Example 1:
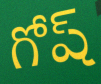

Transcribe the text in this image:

గోష్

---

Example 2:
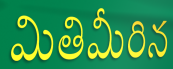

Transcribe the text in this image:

మితిమీరిన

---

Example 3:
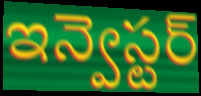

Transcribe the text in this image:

ఇన్వెస్టర్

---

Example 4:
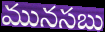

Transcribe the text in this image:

మునసబు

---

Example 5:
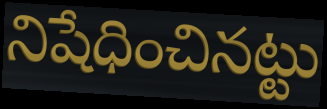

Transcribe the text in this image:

నిషేధించినట్టు